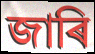
জাৰি